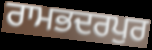
ਰਾਮਭਦਰਪੁਰ